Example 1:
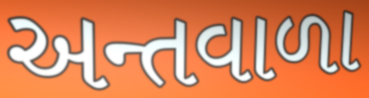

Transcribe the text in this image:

અન્તવાળા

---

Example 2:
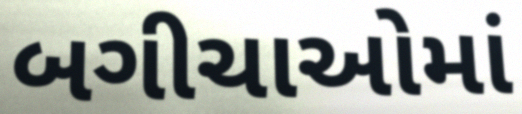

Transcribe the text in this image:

બગીચાઓમાં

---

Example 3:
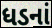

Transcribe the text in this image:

ધડનાં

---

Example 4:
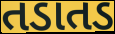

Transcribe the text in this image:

તડાતડ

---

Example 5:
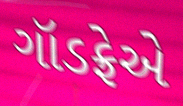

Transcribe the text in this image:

ગૉડફ્રેએ